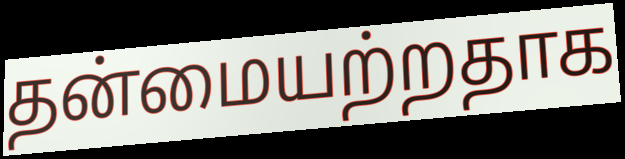
தன்மையற்றதாக